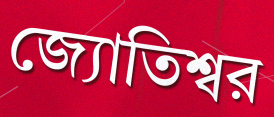
জ্যোতিশ্বর